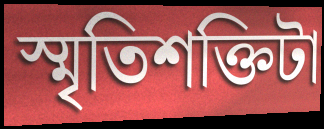
স্মৃতিশক্তিটা